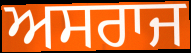
ਅਸਰਾਜ